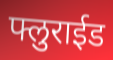
फ्लुराईड